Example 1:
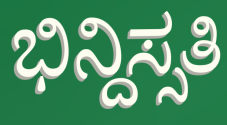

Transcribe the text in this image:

ಭಿನ್ದಿಸ್ಸತಿ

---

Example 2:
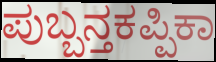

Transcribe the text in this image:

ಪುಬ್ಬನ್ತಕಪ್ಪಿಕಾ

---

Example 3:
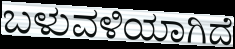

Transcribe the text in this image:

ಬಳುವಳಿಯಾಗಿದೆ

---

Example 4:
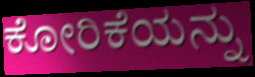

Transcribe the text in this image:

ಕೋರಿಕೆಯನ್ನು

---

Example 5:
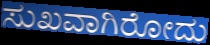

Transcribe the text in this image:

ಸುಖವಾಗಿರೋದು